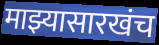
माझ्यासारखंच